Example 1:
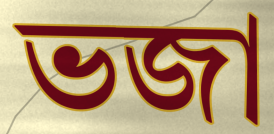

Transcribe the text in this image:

ভজা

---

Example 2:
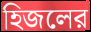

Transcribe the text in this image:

হিজলের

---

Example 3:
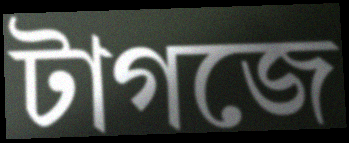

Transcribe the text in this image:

টাগজে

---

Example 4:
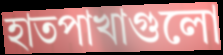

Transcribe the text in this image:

হাতপাখাগুলো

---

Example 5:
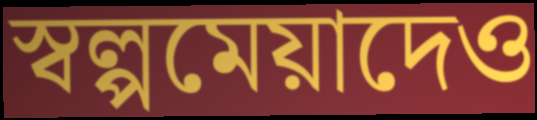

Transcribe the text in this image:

স্বল্পমেয়াদেও